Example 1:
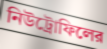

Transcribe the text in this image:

নিউট্রোফিলের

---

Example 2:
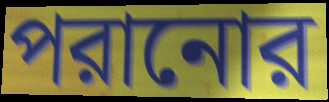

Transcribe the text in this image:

পরানোর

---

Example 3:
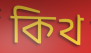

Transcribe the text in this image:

কিথ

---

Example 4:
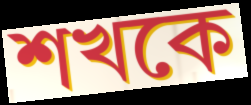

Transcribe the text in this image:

শখকে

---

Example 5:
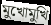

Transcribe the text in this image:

মুখোমুখি